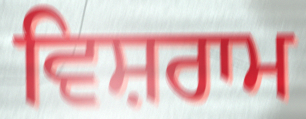
ਵਿਸ਼ਰਾਮ